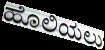
ಹೊಲಿಯಲು